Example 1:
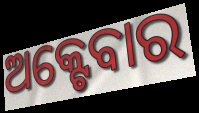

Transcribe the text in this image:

ଅକ୍ଟେବାର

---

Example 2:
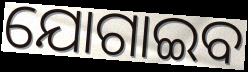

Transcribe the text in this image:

ଯୋଗାଇବ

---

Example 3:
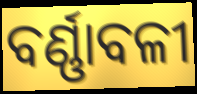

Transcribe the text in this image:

ବର୍ଣ୍ଣାବଳୀ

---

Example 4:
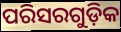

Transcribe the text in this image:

ପରିସରଗୁଡ଼ିକ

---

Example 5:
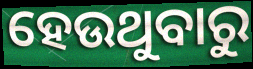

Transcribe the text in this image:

ହେଉଥୁବାରୁ